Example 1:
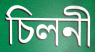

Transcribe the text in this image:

চিলনী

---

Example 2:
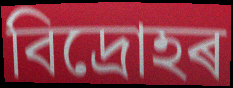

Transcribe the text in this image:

বিদ্ৰোহৰ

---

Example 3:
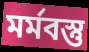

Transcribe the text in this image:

মৰ্মবস্তু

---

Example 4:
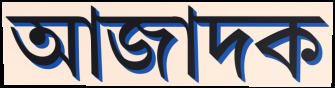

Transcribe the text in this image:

আজাদক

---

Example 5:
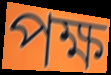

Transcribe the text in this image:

পক্ষ